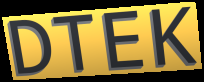
DTEK